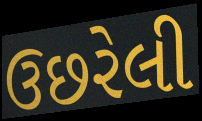
ઉછરેલી